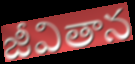
జీవితాన